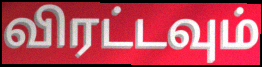
விரட்டவும்